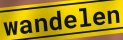
wandelen